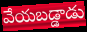
వేయబడ్డాడు